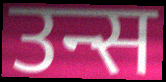
उन्स